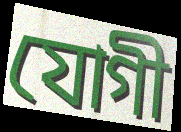
যোগী